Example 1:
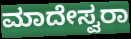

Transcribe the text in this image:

ಮಾದೇಸ್ವರಾ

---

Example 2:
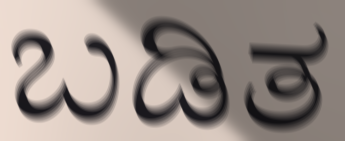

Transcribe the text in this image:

ಬಡಿತ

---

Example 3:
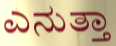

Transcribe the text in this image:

ಎನುತ್ತಾ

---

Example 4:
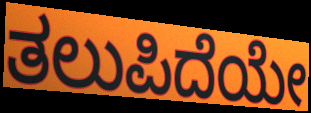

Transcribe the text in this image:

ತಲುಪಿದೆಯೇ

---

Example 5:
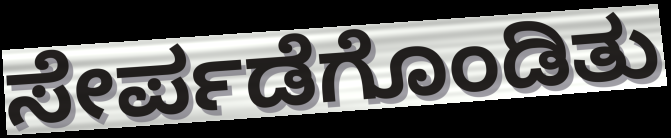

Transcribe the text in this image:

ಸೇರ್ಪಡೆಗೊಂಡಿತು